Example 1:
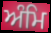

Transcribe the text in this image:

ਅੰਮਿ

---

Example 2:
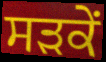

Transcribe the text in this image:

ਸੜਕੇਂ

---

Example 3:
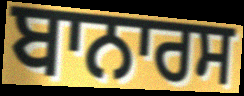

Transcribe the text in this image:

ਬਾਨਾਰਸ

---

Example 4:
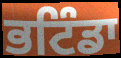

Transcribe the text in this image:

ਭਟਿੰਡਾ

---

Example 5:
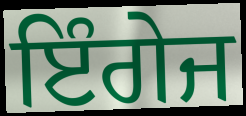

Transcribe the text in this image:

ਇੰਗੇਜ